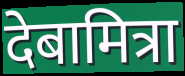
देबामित्रा